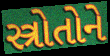
સ્ત્રોતોને